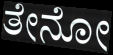
ತೇನೋ